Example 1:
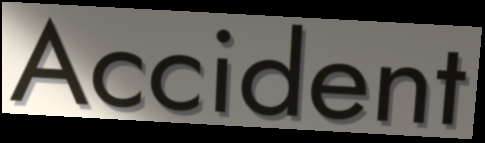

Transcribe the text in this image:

Accident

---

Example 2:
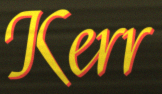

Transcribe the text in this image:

Kerr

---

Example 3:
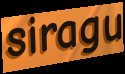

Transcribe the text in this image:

siragu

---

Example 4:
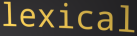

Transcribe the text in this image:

lexical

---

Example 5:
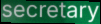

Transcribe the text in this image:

secretary